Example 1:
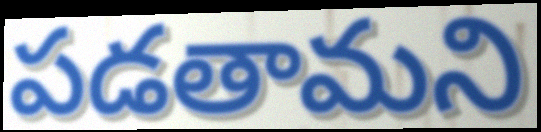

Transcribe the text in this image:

పడతామని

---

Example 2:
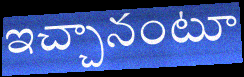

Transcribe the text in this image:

ఇచ్చానంటూ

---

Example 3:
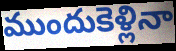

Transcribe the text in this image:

ముందుకెళ్లినా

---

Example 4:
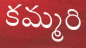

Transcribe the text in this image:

కమ్మరి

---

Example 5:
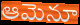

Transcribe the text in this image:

ఆమెనూ